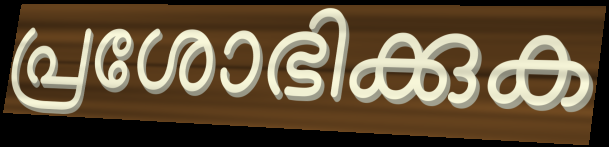
പ്രശോഭിക്കുക